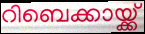
റിബെക്കായ്ക്ക്